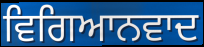
ਵਿਗਿਆਨਵਾਦ